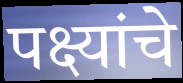
पक्ष्यांचे